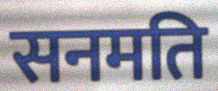
सनमति